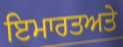
ਇਮਾਰਤਅਤੇ